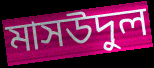
মাসউদুল